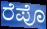
ರೆಪೊ